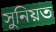
সুনিয়ত